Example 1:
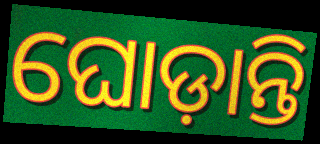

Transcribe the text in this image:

ଘୋଡ଼ାନ୍ତି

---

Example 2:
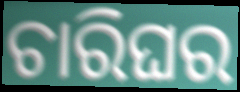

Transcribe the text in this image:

ଚାରିଘର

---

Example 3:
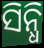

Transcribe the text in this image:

ସିନ୍ଧି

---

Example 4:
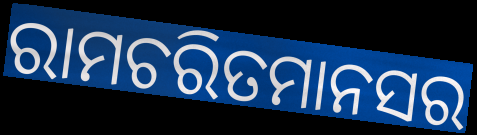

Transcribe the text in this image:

ରାମଚରିତମାନସର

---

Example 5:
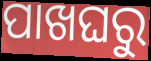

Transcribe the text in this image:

ପାଖଘରୁ